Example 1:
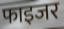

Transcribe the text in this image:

फाइजर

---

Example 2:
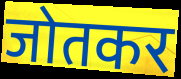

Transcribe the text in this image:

जोतकर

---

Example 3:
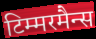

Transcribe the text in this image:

टिम्मरमैन्स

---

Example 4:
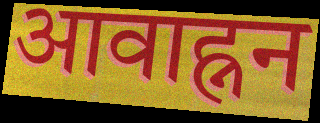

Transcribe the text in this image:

आवाह्नन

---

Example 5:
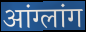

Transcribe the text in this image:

आंग्लांग